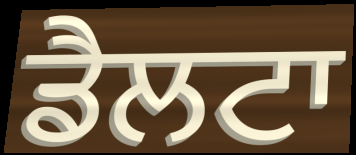
ਡੈਲਟਾ